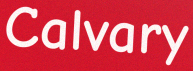
Calvary